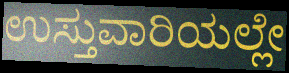
ಉಸ್ತುವಾರಿಯಲ್ಲೇ